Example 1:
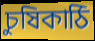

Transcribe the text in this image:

চুষিকাঠি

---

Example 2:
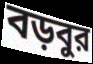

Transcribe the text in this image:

বড়বুর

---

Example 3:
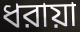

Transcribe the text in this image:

ধরায়া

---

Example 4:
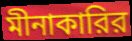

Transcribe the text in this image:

মীনাকারির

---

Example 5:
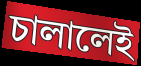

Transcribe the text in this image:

চালালেই